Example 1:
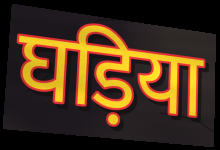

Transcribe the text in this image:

घड़िया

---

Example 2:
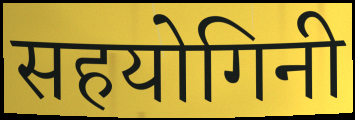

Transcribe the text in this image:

सहयोगिनी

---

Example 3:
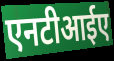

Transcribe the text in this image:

एनटीआईए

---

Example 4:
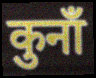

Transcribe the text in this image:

कुनाँ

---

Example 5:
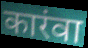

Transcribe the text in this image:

कारंवा